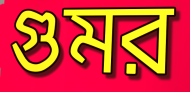
গুমর